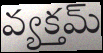
వ్యక్తమ్